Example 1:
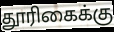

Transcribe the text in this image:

தூரிகைக்கு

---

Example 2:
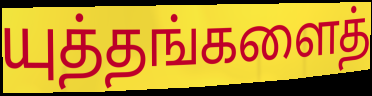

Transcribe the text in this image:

யுத்தங்களைத்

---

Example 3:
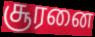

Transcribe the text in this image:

சூரனை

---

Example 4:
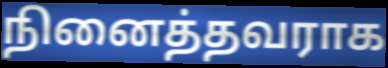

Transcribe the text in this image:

நினைத்தவராக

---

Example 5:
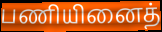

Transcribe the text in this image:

பணியினைத்